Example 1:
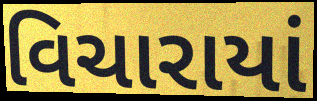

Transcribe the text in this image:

વિચારાયાં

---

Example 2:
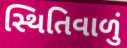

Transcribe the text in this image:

સ્થિતિવાળું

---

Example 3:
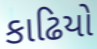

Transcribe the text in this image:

કાઢિયો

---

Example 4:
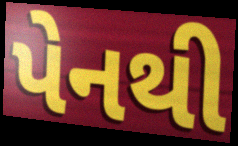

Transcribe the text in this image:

પેનથી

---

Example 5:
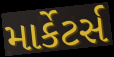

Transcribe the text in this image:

માર્કેટર્સ